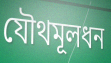
যৌথমূলধন